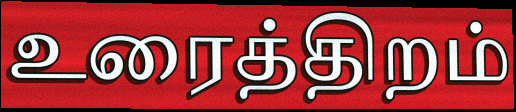
உரைத்திறம்